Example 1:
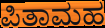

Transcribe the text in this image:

ಪಿತಾಮಹ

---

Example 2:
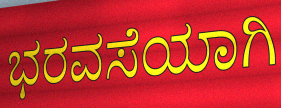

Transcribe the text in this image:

ಭರವಸೆಯಾಗಿ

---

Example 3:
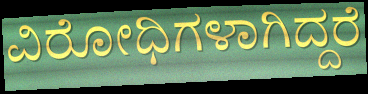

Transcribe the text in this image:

ವಿರೋಧಿಗಳಾಗಿದ್ದರೆ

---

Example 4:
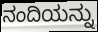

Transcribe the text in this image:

ನಂದಿಯನ್ನು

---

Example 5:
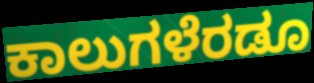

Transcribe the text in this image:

ಕಾಲುಗಳೆರಡೂ